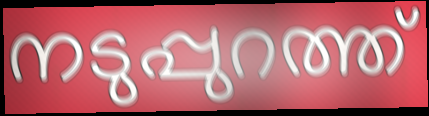
നടുപ്പുറത്ത്